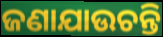
ଜଣାଯାଉଚନ୍ତି